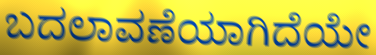
ಬದಲಾವಣೆಯಾಗಿದೆಯೇ